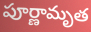
పూర్ణామృత